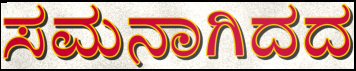
ಸಮನಾಗಿದದ